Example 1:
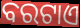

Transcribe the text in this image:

ବରଟାଏ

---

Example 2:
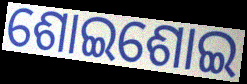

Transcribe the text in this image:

ଶୋଇଶୋଇ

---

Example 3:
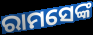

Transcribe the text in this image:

ରାମସେଙ୍କ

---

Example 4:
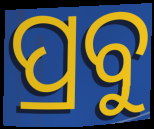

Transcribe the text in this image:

ପ୍ରବୁ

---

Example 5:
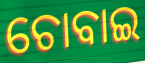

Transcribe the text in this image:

ଚୋବାଇ